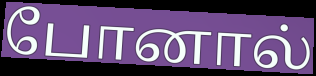
போனால்